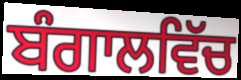
ਬੰਗਾਲਵਿੱਚ